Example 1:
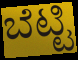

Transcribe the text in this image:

ಬೆಟ್ಟಿ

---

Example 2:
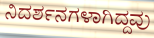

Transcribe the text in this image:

ನಿದರ್ಶನಗಳಾಗಿದ್ದವು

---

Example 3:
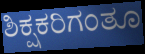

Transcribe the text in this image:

ಶಿಕ್ಷಕರಿಗಂತೂ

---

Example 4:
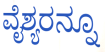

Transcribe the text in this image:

ವೈಶ್ಯರನ್ನೂ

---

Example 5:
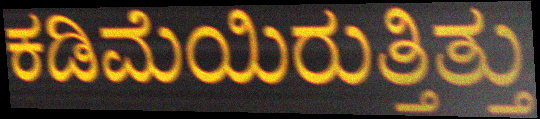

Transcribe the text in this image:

ಕಡಿಮೆಯಿರುತ್ತಿತ್ತು